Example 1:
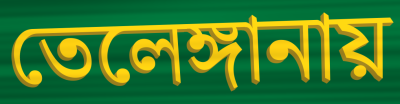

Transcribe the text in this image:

তেলেঙ্গানায়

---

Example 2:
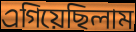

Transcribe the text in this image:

এগিয়েছিলাম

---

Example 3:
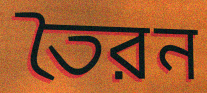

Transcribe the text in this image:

তৈরন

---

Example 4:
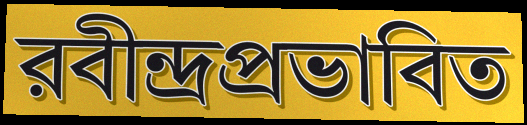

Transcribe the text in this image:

রবীন্দ্রপ্রভাবিত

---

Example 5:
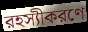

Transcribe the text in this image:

রহস্যীকরণে